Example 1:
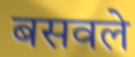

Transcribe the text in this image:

बसवले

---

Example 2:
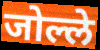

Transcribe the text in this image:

जोल्ले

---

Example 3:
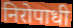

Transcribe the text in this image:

निरोपाधी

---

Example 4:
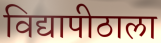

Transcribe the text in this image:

विद्यापीठाला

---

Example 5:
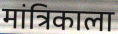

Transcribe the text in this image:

मांत्रिकाला